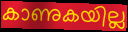
കാണുകയില്ല